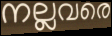
നല്ലവരെ